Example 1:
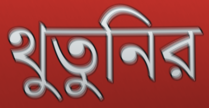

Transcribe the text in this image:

থুতুনির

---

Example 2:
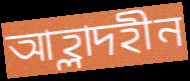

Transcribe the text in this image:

আহ্লাদহীন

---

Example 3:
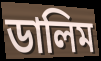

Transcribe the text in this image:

ডালিম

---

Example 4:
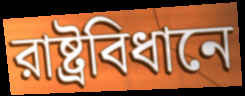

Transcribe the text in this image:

রাষ্ট্রবিধানে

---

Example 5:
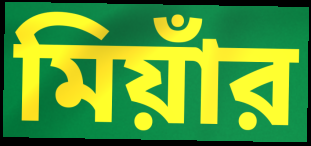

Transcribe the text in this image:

মিয়াঁর